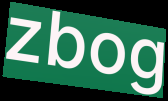
zbog